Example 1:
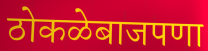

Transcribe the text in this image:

ठोकळेबाजपणा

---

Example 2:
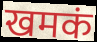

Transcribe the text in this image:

खमकं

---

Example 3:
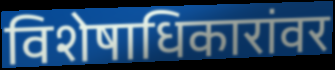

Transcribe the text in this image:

विशेषाधिकारांवर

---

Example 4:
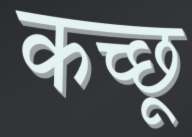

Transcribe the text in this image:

कच्छू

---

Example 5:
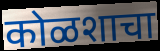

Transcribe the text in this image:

कोळशाचा